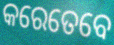
କରେତେବେ